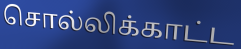
சொல்லிக்காட்ட